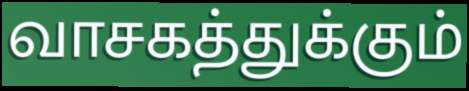
வாசகத்துக்கும்